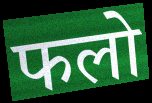
फलो